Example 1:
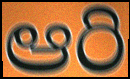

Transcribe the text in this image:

ఆరి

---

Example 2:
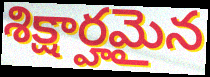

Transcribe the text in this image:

శిక్షార్హమైన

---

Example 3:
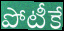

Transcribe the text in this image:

పోటీకే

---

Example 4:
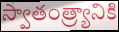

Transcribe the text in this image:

స్వాతంత్ర్యానికి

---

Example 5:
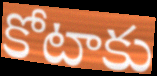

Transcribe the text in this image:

కోటాకు